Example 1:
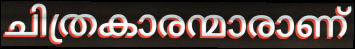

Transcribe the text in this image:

ചിത്രകാരന്മാരാണ്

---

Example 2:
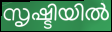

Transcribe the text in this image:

സൃഷ്ടിയിൽ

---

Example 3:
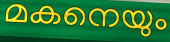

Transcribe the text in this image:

മകനെയും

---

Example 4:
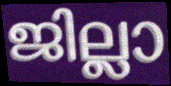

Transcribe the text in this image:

ജില്ലാ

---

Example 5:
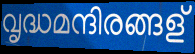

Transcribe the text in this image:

വൃദ്ധമന്ദിരങ്ങള്